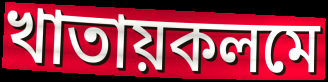
খাতায়কলমে